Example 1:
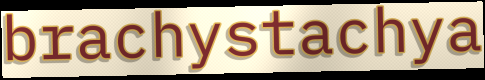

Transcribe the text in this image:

brachystachya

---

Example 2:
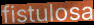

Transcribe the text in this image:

fistulosa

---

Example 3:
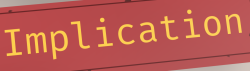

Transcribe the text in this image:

Implication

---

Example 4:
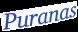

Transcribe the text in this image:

Puranas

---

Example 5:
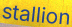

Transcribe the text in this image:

stallion